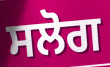
ਸਲੋਗ